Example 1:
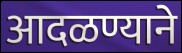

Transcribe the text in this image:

आदळण्याने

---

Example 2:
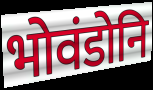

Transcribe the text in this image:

भोवंडोनि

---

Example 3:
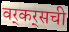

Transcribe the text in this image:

वर्कर्सची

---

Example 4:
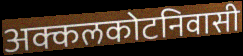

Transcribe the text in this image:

अक्कलकोटनिवासी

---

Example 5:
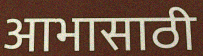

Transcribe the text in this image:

आभासाठी